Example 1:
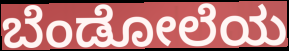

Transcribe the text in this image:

ಬೆಂಡೋಲೆಯ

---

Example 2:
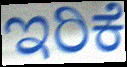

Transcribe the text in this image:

ಇರಿಕೆ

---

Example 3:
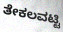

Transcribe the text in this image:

ತೇಕಲವಟ್ಟಿ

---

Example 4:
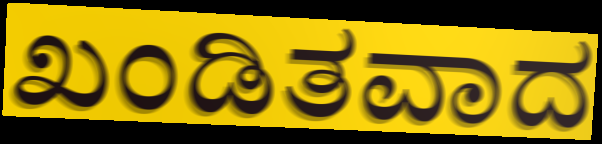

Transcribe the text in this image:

ಖಂಡಿತವಾದ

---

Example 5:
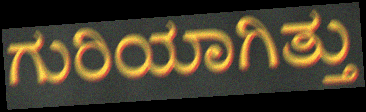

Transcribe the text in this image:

ಗುರಿಯಾಗಿತ್ತು